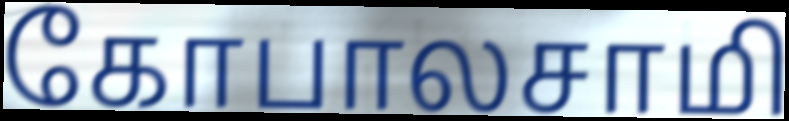
கோபாலசாமி